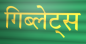
गिब्लेट्स